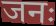
जनः